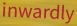
inwardly